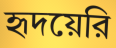
হৃদয়েরি